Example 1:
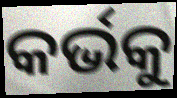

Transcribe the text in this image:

କର୍ଭକୁ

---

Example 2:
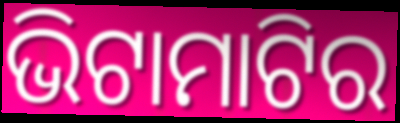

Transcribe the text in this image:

ଭିଟାମାଟିର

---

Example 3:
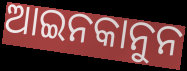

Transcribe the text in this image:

ଆଇନକାନୁନ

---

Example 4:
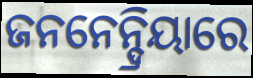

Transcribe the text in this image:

ଜନନେନ୍ଦ୍ରିୟାରେ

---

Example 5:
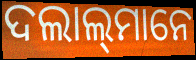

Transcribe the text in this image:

ଦଲାଲ୍‍ମାନେ